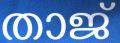
താജ്